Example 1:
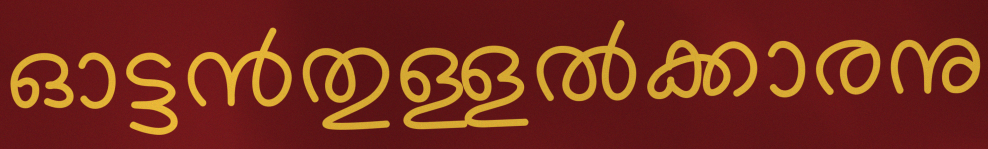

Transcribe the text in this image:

ഓട്ടൻതുള്ളൽക്കാരനു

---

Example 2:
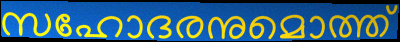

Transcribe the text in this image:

സഹോദരനുമൊത്ത്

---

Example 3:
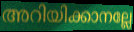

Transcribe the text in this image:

അറിയിക്കാനല്ലേ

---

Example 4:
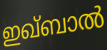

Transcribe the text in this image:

ഇഖ്ബാൽ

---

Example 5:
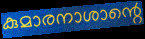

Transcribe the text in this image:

കുമാരനാശാന്റെ